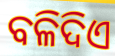
ବଳିଦିଏ